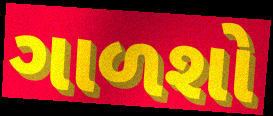
ગાળશો